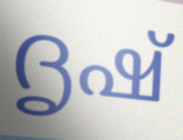
ദൃഷ്